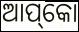
ଆପ୍‌କୋ